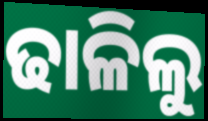
ଢାଳିଲୁ